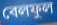
বেলফুল